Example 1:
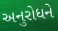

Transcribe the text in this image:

અનુરોધને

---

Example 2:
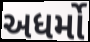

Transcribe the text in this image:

અધર્મો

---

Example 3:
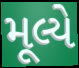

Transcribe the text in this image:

મૂલ્યે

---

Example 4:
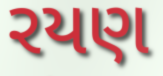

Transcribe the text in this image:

રયણ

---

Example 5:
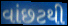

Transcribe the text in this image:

વાંછટથી